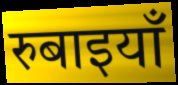
रुबाइयाँ